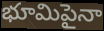
భూమిపైనా